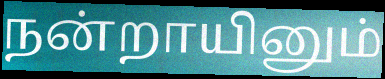
நன்றாயினும்